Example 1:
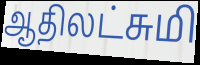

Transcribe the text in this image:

ஆதிலட்சுமி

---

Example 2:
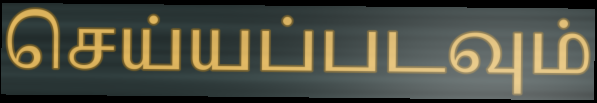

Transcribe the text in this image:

செய்யப்படவும்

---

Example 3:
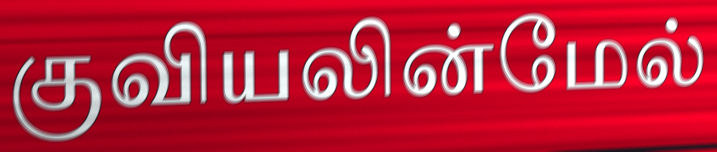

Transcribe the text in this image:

குவியலின்மேல்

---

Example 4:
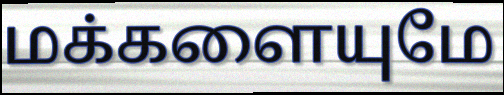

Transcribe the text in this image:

மக்களையுமே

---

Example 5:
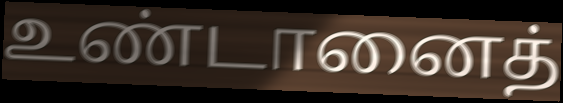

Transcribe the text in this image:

உண்டானைத்